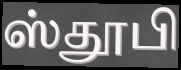
ஸ்தூபி